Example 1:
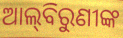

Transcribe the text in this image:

ଆଲ୍‌ବିରୁଣୀଙ୍କ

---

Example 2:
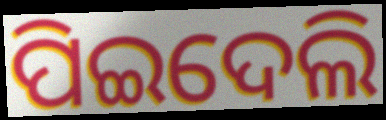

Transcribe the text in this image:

ପିଇଦେଲି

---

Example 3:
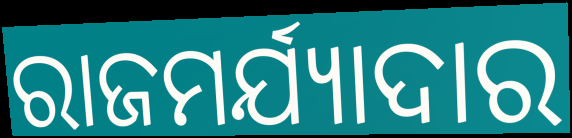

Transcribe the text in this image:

ରାଜମର୍ଯ୍ୟାଦାର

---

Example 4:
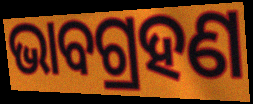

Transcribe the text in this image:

ଭାବଗ୍ରହଣ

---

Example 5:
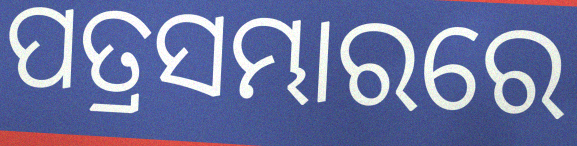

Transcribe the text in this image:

ପତ୍ରସମ୍ଭାରରେ